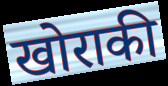
खोराकी